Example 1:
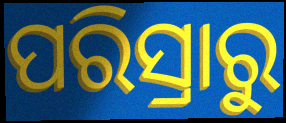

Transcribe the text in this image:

ପରିସ୍ରାରୁ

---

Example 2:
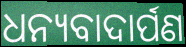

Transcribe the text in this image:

ଧନ୍ୟବାଦାର୍ପଣ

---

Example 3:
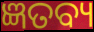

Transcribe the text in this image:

ଜ୍ଞତବ୍ୟ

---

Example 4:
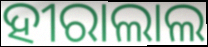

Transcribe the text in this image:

ହୀରାଲାଲ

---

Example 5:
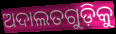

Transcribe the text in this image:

ଅଦାଲତଗୁଡ଼ିକୁ